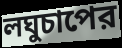
লঘুচাপের